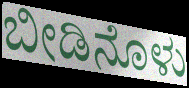
ಬೀಡಿನೊಳು